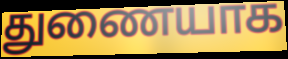
துணையாக